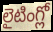
లైటింగ్లో